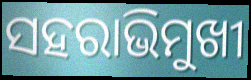
ସହରାଭିମୁଖୀ